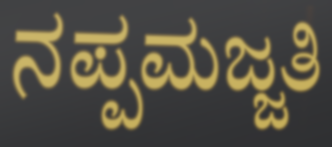
ನಪ್ಪಮಜ್ಜತಿ